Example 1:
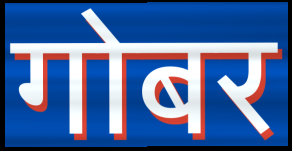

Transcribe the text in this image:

गोबर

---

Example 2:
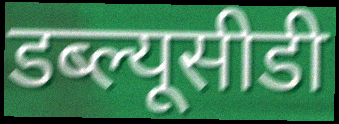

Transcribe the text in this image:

डब्ल्यूसीडी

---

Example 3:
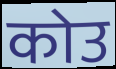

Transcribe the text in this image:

कोउ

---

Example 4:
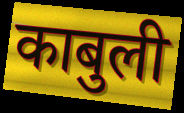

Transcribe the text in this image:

काबुली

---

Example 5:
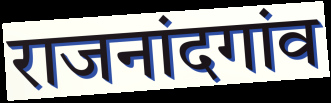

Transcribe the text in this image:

राजनांदगांव